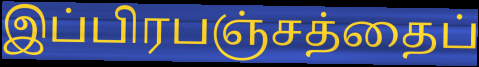
இப்பிரபஞ்சத்தைப்